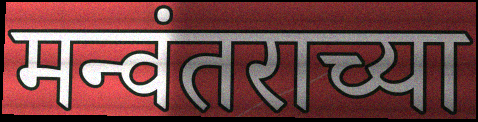
मन्वंतराच्या